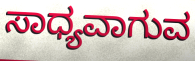
ಸಾಧ್ಯವಾಗುವ